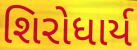
શિરોધાર્ય